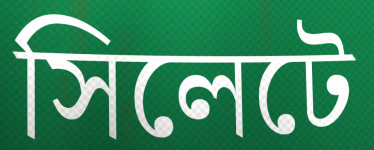
সিলেটে